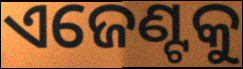
ଏଜେଣ୍ଟକୁ